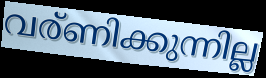
വര്ണിക്കുന്നില്ല